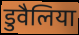
डुवैलिया